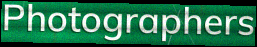
Photographers